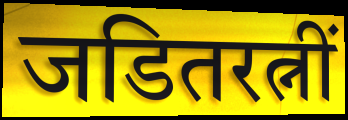
जडितरत्नीं